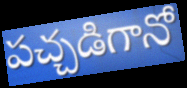
పచ్చడిగానో